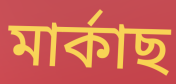
মাৰ্কাছ